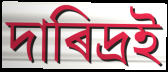
দাৰিদ্ৰই